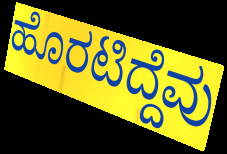
ಹೊರಟಿದ್ದೆವು